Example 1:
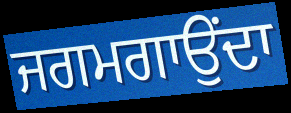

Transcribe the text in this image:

ਜਗਮਗਾਉਂਦਾ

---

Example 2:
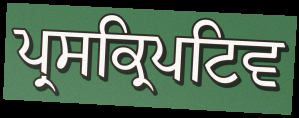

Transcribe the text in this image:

ਪ੍ਰਸਕ੍ਰਿਪਟਿਵ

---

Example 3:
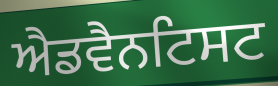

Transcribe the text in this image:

ਐਡਵੈਨਟਿਸਟ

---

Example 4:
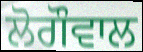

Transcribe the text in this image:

ਲੋਗੌਵਾਲ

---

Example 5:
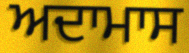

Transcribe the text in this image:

ਅਦਾਮਾਸ